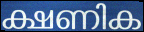
ക്ഷണിക